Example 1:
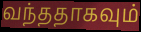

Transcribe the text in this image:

வந்ததாகவும்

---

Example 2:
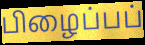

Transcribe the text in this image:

பிழைப்பப்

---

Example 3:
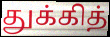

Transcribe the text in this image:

துக்கித்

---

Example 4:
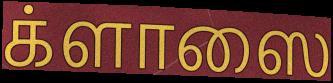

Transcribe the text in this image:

க்ளாஸை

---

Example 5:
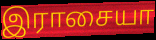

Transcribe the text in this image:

இராசையா